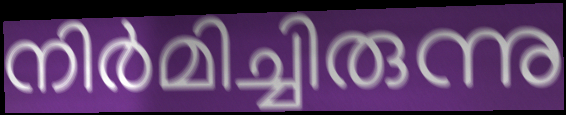
നിർമിച്ചിരുന്നു